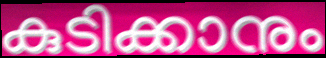
കുടിക്കാനും